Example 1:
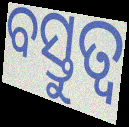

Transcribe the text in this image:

ବସ୍ତୁତ୍ବ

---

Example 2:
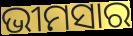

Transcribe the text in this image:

ଭୀମସାର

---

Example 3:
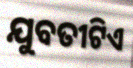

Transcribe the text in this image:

ଯୁବତୀଟିଏ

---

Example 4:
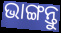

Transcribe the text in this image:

ଭାଙ୍ଗନ୍ତୁ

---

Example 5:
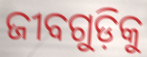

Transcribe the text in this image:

ଜୀବଗୁଡ଼ିକୁ